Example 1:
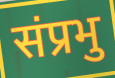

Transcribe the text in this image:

संप्रभु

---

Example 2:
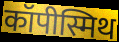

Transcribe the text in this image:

कॉपीस्मिथ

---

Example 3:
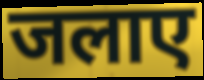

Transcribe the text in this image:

जलाए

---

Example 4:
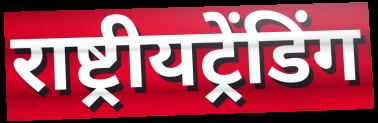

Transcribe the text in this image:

राष्ट्रीयट्रेंडिंग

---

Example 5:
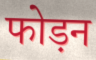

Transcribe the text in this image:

फोड़न